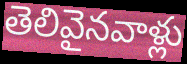
తెలివైనవాళ్లు